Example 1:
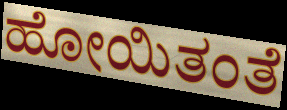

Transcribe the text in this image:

ಹೋಯಿತಂತೆ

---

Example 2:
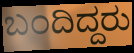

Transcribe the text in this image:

ಬಂದಿದ್ದರು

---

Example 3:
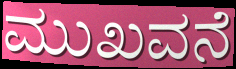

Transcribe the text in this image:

ಮುಖವನೆ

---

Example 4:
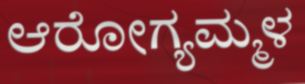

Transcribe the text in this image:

ಆರೋಗ್ಯಮ್ಮಳ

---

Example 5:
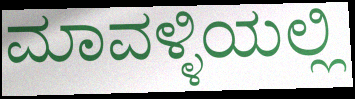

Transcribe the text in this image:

ಮಾವಳ್ಳಿಯಲ್ಲಿ